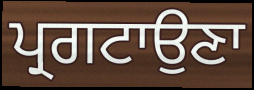
ਪ੍ਰਗਟਾਉਣਾ